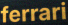
ferrari